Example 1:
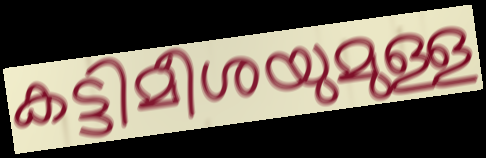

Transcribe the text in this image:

കട്ടിമീശയുമുള്ള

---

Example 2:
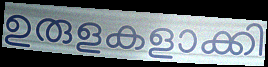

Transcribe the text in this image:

ഉരുളകളാക്കി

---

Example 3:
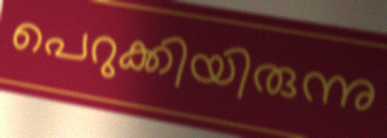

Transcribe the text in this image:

പെറുക്കിയിരുന്നു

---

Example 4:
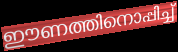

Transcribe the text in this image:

ഈണത്തിനൊപ്പിച്ച്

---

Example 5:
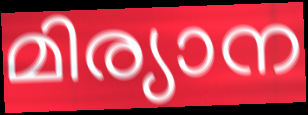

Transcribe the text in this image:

മിര്യാന